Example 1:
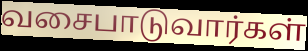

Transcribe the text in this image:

வசைபாடுவார்கள்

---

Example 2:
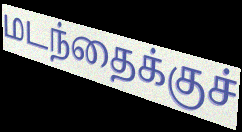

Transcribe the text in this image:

மடந்தைக்குச்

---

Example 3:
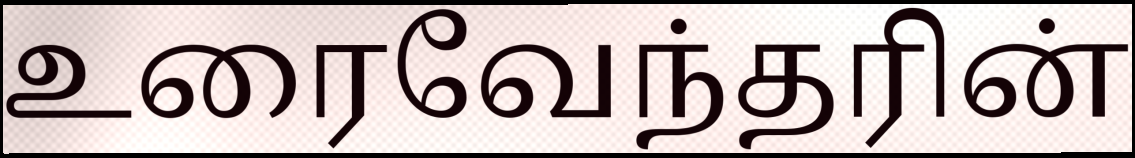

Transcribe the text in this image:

உரைவேந்தரின்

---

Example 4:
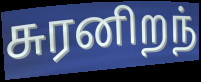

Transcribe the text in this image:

சுரனிறந்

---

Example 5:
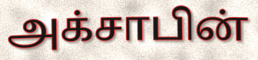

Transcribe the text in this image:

அக்சாபின்